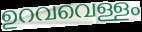
ഉറവവെള്ളം